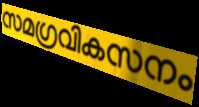
സമഗ്രവികസനം